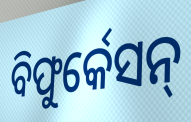
ବିଫୁର୍କେସନ୍